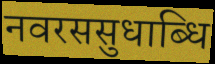
नवरससुधाब्धि